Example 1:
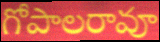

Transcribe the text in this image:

గోపాలరావూ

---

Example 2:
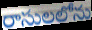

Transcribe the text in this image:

రాసులలోను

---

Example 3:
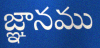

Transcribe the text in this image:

జ్ఞానము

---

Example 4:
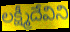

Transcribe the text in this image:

లక్ష్మీదేవిని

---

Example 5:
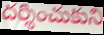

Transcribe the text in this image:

దర్శించుకుని